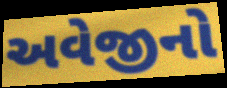
અવેજીનો